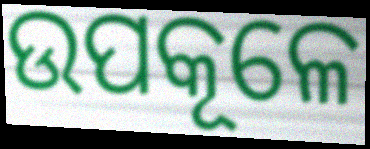
ଉପକୂଳେ